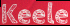
Keele